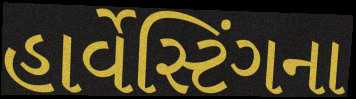
હાર્વેસ્ટિંગના